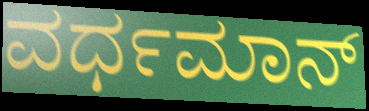
ವರ್ಧಮಾನ್